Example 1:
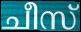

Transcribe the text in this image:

ചീസ്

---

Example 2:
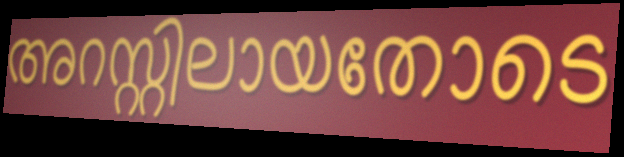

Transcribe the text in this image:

അറസ്റ്റിലായതോടെ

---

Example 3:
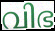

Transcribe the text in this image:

വിഭ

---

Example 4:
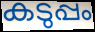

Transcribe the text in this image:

കടുപ്പം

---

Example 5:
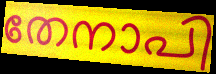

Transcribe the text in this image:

തേനാപി